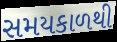
સમયકાળથી